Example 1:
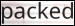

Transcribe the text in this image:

packed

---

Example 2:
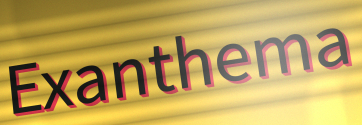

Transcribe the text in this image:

Exanthema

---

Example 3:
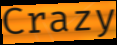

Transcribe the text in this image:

Crazy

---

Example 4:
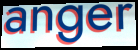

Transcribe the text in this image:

anger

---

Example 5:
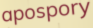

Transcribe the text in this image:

apospory